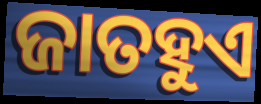
ଜାତହୁଏ